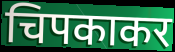
चिपकाकर